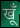
खूँ